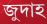
জুদাহ